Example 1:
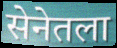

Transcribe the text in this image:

सेनेतला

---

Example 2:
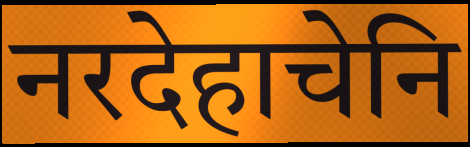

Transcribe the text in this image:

नरदेहाचेनि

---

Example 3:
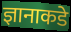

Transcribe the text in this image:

ज्ञानाकडे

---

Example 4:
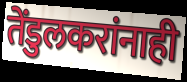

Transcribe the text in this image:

तेंडुलकरांनाही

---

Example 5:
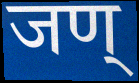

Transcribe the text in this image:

जण्